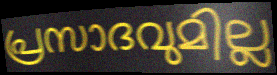
പ്രസാദവുമില്ല